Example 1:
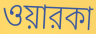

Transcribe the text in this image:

ওয়ারকা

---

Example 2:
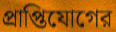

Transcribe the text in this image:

প্রাপ্তিযোগের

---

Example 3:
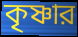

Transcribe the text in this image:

কৃষ্ণার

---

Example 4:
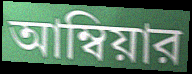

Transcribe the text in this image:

আম্বিয়ার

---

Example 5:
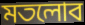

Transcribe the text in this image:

মতলোব